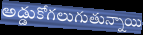
అడ్డుకోగలుగుతున్నాయి